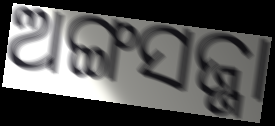
ଅଙ୍ଗସଜ୍ଜା